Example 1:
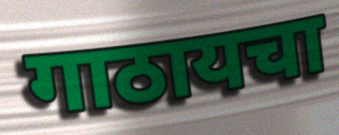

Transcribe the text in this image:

गाठायचा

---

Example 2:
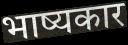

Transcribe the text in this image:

भाष्यकार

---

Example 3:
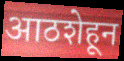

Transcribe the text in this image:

आठशेहून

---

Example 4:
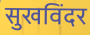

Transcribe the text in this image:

सुखविंदर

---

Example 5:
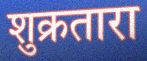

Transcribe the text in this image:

शुक्रतारा